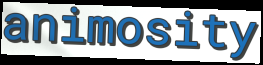
animosity